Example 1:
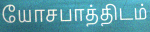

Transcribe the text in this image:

யோசபாத்திடம்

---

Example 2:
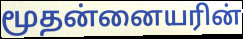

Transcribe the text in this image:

மூதன்னையரின்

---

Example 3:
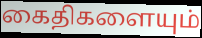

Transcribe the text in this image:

கைதிகளையும்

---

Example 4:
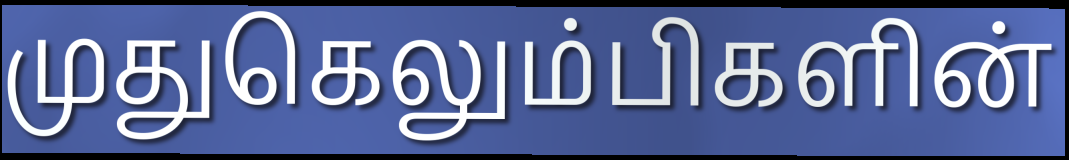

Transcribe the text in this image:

முதுகெலும்பிகளின்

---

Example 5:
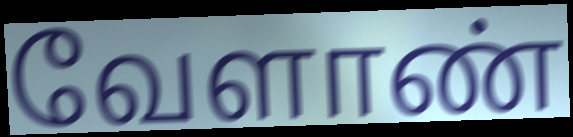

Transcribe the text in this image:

வேளாண்